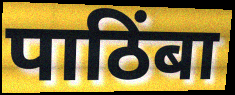
पाठिंबा